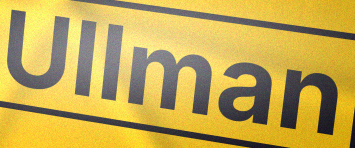
Ullman